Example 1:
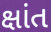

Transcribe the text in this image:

ક્ષાંત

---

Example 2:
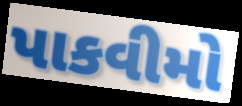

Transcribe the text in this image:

પાકવીમો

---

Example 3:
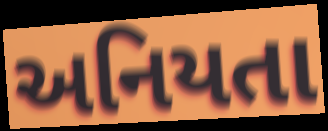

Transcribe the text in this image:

અનિયતા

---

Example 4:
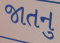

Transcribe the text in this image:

જાતનુ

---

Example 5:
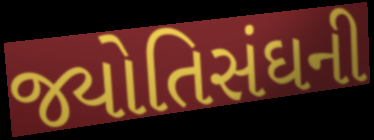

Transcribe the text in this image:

જ્યોતિસંઘની